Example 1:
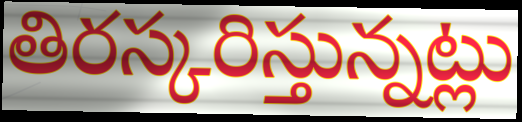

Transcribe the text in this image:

తిరస్కరిస్తున్నట్లు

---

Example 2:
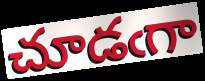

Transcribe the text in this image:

చూడఁగా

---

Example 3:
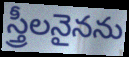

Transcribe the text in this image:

స్త్రీలనైనను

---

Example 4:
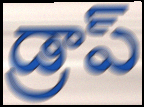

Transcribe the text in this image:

డ్రాప్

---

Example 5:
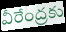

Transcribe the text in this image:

వీరేంద్రకు